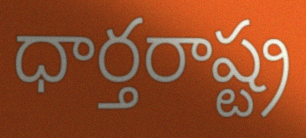
ధార్తరాష్ట్ర